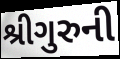
શ્રીગુરુની